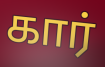
கார்